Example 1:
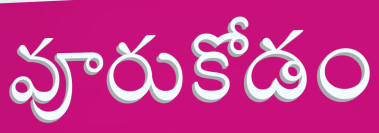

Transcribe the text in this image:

వూరుకోడం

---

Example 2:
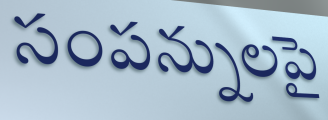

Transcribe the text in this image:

సంపన్నులపై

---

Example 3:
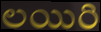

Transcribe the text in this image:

లయిరి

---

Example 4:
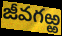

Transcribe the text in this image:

జీవగఱ్ఱ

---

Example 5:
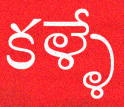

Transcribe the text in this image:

కళ్ళే